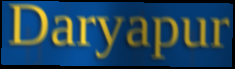
Daryapur